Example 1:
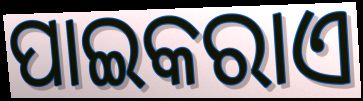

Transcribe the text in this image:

ପାଇକରାଏ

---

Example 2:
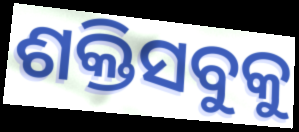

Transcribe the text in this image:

ଶକ୍ତିସବୁକୁ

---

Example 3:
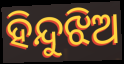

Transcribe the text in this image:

ହିନ୍ଦୁଝିଅ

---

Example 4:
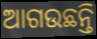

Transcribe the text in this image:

ଆଗଉଛନ୍ତି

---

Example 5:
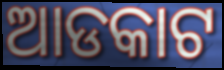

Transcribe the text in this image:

ଆଡକାଟ